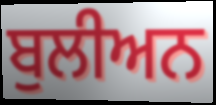
ਬੁਲੀਅਨ